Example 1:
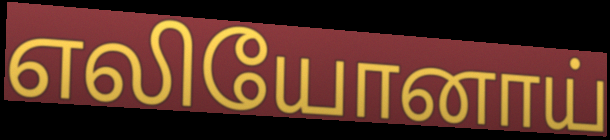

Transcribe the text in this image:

எலியோனாய்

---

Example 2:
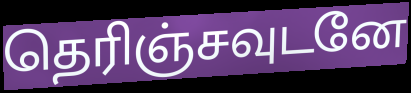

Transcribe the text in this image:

தெரிஞ்சவுடனே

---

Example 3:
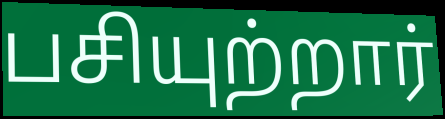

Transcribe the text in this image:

பசியுற்றார்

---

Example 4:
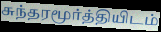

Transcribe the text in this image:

சுந்தரமூர்த்தியிடம்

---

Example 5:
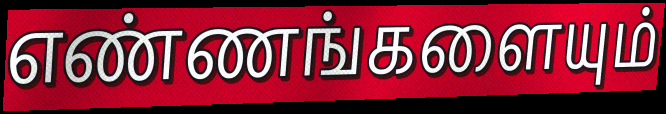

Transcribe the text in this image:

எண்ணங்களையும்